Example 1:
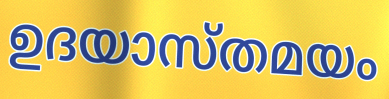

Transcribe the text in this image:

ഉദയാസ്തമയം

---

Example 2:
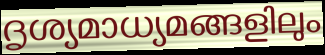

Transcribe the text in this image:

ദൃശ്യമാധ്യമങ്ങളിലും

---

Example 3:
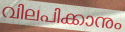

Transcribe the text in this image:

വിലപിക്കാനും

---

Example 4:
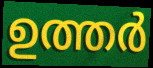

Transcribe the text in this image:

ഉത്തർ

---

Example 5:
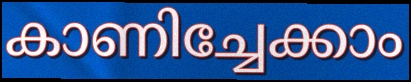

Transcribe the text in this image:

കാണിച്ചേക്കാം